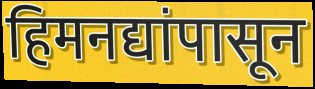
हिमनद्यांपासून